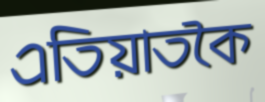
এতিয়াতকৈ